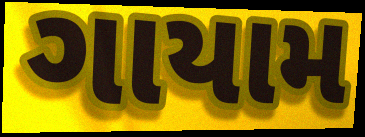
ગાયામ